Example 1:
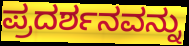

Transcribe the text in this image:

ಪ್ರದರ್ಶನವನ್ನು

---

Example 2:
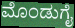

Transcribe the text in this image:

ಮೊಂಡುಗೈ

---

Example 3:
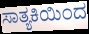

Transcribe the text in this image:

ಸಾತ್ಯಕಿಯಿಂದ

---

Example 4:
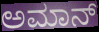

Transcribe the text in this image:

ಅಮಾನ್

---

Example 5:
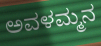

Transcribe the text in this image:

ಅವಳಮ್ಮನ